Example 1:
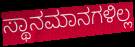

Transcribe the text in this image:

ಸ್ಥಾನಮಾನಗಳಿಲ್ಲ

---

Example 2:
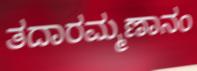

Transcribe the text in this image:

ತದಾರಮ್ಮಣಾನಂ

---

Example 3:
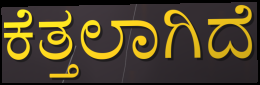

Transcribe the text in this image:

ಕೆತ್ತಲಾಗಿದೆ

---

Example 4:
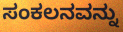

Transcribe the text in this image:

ಸಂಕಲನವನ್ನು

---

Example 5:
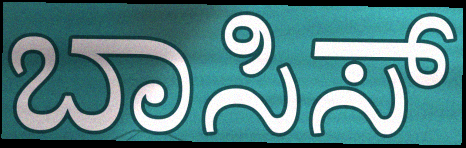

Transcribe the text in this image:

ಬಾಸಿಸ್